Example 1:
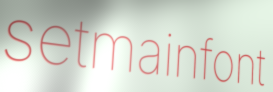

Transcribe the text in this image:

setmainfont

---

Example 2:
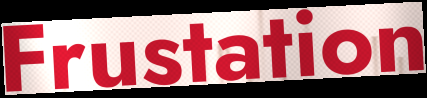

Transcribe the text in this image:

Frustation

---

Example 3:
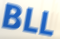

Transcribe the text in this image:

BLL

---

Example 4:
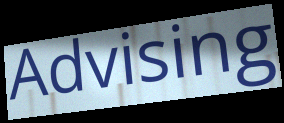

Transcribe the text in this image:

Advising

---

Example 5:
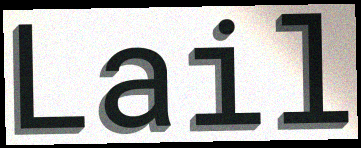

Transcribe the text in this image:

Lail